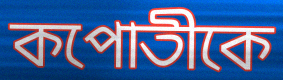
কপোতীকে